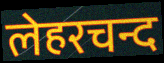
लेहरचन्द